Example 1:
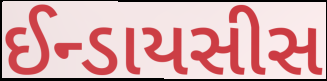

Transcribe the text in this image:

ઈન્ડાયસીસ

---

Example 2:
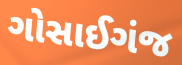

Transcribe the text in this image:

ગોસાઈગંજ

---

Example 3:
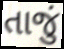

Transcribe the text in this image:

તાજું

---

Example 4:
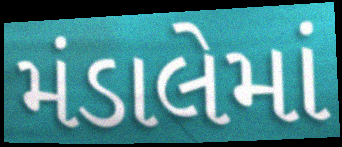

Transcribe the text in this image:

મંડાલેમાં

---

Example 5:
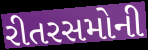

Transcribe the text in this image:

રીતરસમોની